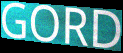
GORD